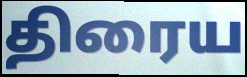
திரைய